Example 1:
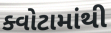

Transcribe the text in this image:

ક્વોટામાંથી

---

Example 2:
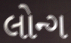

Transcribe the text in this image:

લોન્ગ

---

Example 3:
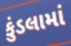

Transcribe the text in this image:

કુંડલામાં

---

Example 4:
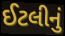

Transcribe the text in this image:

ઈટલીનું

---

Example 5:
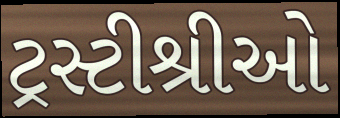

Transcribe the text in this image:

ટ્રસ્ટીશ્રીઓ